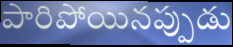
పారిపోయినప్పుడు